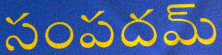
సంపదమ్